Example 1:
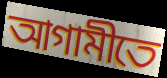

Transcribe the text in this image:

আগামীতে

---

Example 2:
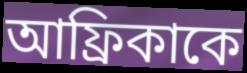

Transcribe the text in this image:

আফ্রিকাকে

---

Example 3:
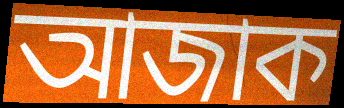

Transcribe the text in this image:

আজাক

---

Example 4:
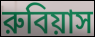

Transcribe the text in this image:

রুবিয়াস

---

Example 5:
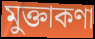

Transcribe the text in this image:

মুক্তাকণা